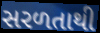
સરળતાથી